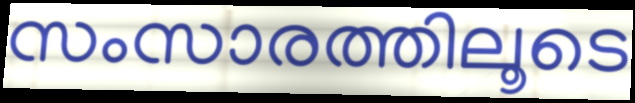
സംസാരത്തിലൂടെ